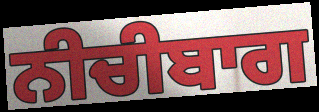
ਨੀਚੀਬਾਗ